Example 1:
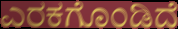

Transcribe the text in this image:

ಎರಕಗೊಂಡಿದೆ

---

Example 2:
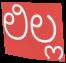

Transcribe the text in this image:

ಲಿಲ್ಲ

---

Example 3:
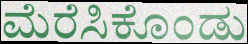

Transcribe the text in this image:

ಮೆರೆಸಿಕೊಂಡು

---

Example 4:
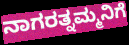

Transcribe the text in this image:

ನಾಗರತ್ನಮ್ಮನಿಗೆ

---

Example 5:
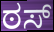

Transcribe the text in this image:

ಠಸ್